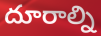
దూరాల్ని